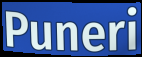
Puneri